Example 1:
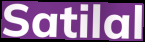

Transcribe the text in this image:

Satilal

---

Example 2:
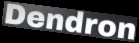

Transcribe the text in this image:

Dendron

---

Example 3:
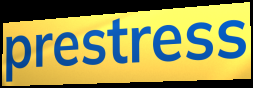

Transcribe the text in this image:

prestress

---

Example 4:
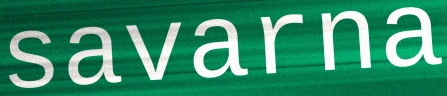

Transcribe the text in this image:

savarna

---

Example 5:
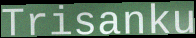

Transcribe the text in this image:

Trisanku